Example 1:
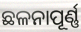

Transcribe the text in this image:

ଛଳନାପୂର୍ଣ୍ଣ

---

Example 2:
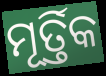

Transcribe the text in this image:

ମୂର୍ତ୍ତିକ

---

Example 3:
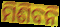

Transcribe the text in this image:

ମିଶିବନି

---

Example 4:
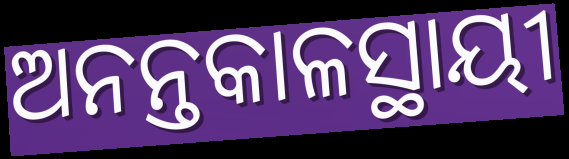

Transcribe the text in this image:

ଅନନ୍ତକାଳସ୍ଥାୟୀ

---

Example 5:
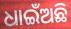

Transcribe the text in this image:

ଧାଇଁଅଛି